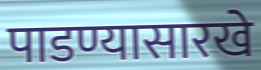
पाडण्यासारखे